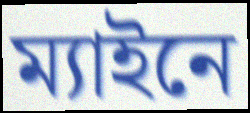
ম্যাইনে